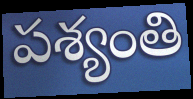
పశ్యంతి